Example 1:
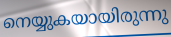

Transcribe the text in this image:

നെയ്യുകയായിരുന്നു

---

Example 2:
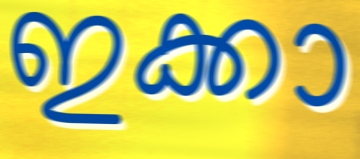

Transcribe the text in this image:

ഇക്കാ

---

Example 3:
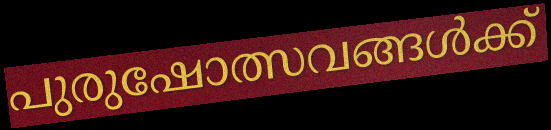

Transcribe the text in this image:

പുരുഷോത്സവങ്ങൾക്ക്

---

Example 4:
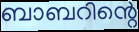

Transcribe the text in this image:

ബാബറിന്റെ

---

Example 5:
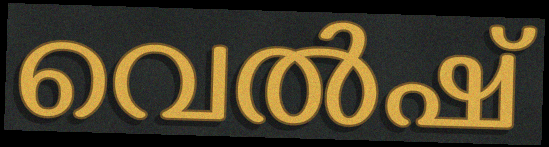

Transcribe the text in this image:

വെൽഷ്